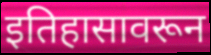
इतिहासावरून